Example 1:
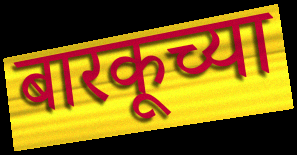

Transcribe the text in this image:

बारकूच्या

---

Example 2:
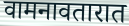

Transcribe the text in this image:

वामनावतारात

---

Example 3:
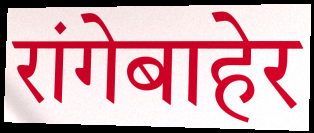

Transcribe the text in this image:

रांगेबाहेर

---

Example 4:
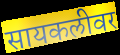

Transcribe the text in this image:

सायकलीवर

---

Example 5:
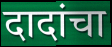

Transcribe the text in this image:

दादांचा